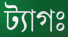
ট্যাগঃ